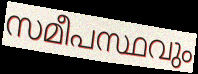
സമീപസ്ഥവും